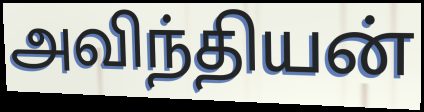
அவிந்தியன்